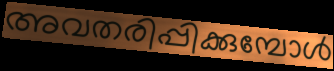
അവതരിപ്പിക്കുമ്പോൾ